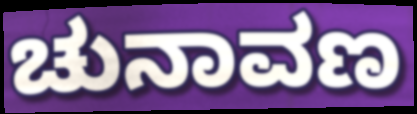
ಚುನಾವಣ